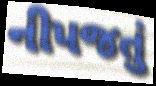
નીપજતું